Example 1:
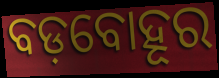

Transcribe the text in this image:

ବଡ଼ବୋହୂର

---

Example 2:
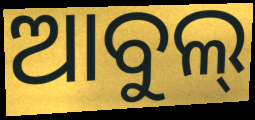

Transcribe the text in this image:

ଆବୁଲ୍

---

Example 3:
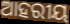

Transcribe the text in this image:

ଆହରୀୟ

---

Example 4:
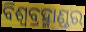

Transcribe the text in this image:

ବିଶ୍ୱବ୍ରହ୍ମାଣ୍ଡର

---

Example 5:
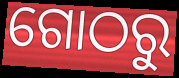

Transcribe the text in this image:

ଗୋଠରୁ